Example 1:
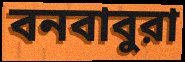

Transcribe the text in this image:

বনবাবুরা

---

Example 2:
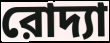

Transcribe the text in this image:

রোদ্যা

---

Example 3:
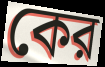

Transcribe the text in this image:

কের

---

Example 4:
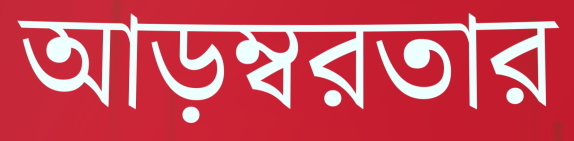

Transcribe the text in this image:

আড়ম্বরতার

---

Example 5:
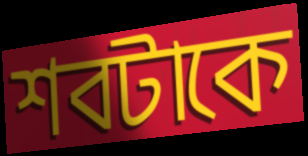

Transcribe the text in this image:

শবটাকে